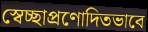
স্বেচ্ছাপ্রণোদিতভাবে